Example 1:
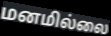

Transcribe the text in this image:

மனமில்லை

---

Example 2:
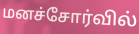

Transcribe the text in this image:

மனச்சோர்வில்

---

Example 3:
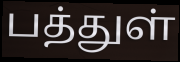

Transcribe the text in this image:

பத்துள்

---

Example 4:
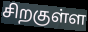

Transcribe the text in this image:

சிறகுள்ள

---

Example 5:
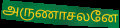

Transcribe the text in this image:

அருணாசலனே